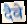
दैवे